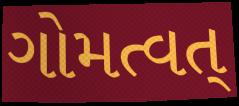
ગોમત્વત્